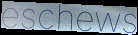
eschews